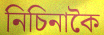
নিচিনাকৈ